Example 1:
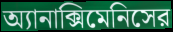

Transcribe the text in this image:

অ্যানাক্সিমেনিসের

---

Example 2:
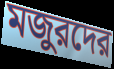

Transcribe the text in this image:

মজুরদের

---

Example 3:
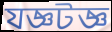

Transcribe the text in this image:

যজ্ঞটজ্ঞ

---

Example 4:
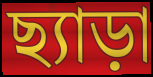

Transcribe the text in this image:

ছ্যাড়া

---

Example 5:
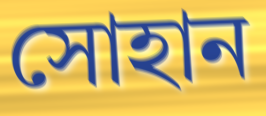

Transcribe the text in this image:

সোহান